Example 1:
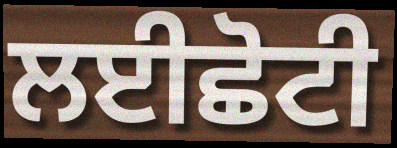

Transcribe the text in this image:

ਲਈਛੋਟੀ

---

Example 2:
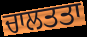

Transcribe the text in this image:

ਚਾਲਤਤਾ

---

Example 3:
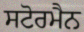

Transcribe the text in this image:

ਸਟੋਰਮੈਨ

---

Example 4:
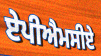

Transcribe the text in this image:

ਏਪੀਐਮਸੀਏ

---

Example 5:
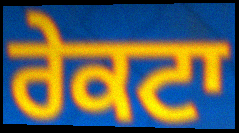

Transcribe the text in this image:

ਰੇਕਟਾ